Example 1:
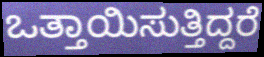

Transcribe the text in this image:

ಒತ್ತಾಯಿಸುತ್ತಿದ್ದರೆ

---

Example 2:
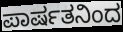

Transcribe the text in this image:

ಪಾರ್ಷತನಿಂದ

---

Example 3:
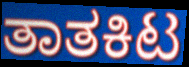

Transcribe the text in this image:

ತಾತಕಿಟ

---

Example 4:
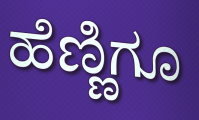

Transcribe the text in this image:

ಹೆಣ್ಣಿಗೂ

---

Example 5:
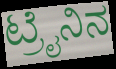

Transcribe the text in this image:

ಟ್ರೈನಿನ